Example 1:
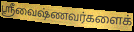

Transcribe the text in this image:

ஸ்ரீவைஷ்ணவர்களைக்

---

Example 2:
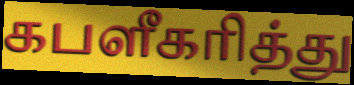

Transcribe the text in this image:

கபளீகரித்து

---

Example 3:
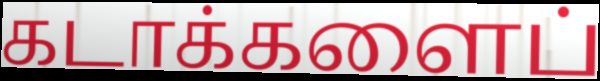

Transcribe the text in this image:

கடாக்களைப்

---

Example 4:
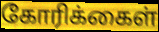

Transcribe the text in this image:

கோரிக்கைள்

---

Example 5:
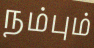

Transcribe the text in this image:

நம்பும்